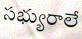
సభ్యురాలే